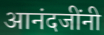
आनंदजींनी